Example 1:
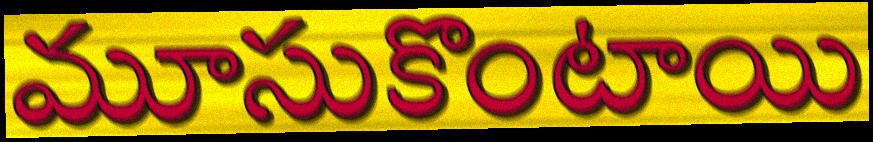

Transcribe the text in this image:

మూసుకొంటాయి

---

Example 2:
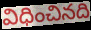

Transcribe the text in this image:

విధించినది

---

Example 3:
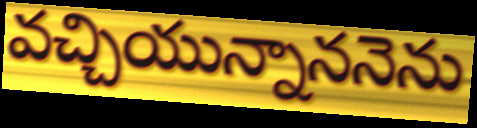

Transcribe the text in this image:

వచ్చియున్నాననెను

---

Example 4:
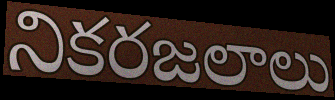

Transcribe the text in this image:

నికరజలాలు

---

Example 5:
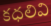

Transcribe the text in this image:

కధలివి